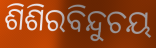
ଶିଶିରବିନ୍ଦୁଚୟ